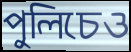
পুলিচেও